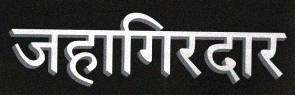
जहागिरदार